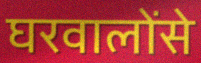
घरवालोंसे